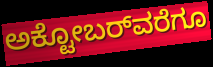
ಅಕ್ಟೋಬರ್‌ವರೆಗೂ